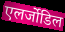
एलर्जोडिल